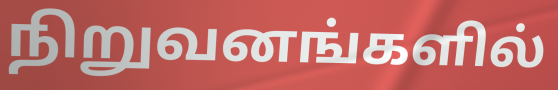
நிறுவனங்களில்